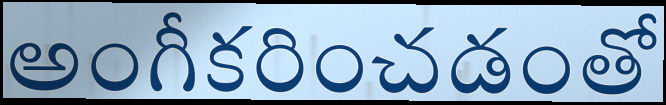
అంగీకరించడంతో